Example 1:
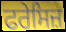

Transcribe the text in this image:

ਫਰੇਸਿਜ਼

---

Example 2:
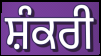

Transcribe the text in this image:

ਸ਼ੰਕਰੀ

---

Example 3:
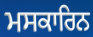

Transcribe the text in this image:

ਮਸਕਾਰਿਨ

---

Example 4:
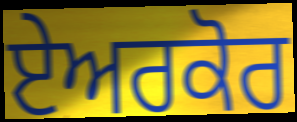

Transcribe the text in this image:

ਏਅਰਕੋਰ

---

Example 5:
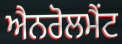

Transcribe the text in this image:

ਐਨਰੋਲਮੈਂਟ